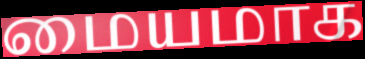
மையமாக